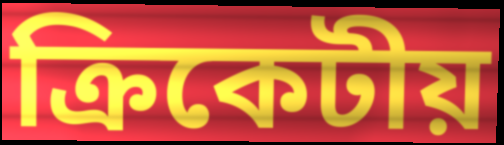
ক্রিকেটীয়